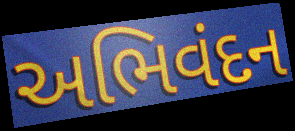
અભિવંદન